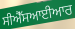
ਸੀਐੱਸਆਈਆਰ